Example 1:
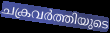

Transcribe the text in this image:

ചക്രവർത്തിയുടെ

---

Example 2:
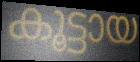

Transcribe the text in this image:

കൂട്ടായ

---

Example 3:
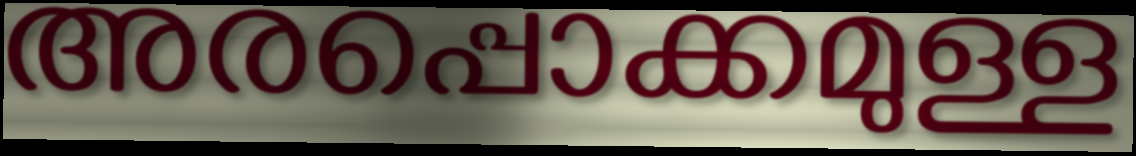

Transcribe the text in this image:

അരപ്പൊക്കമുള്ള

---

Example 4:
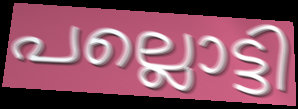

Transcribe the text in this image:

പല്ലൊട്ടി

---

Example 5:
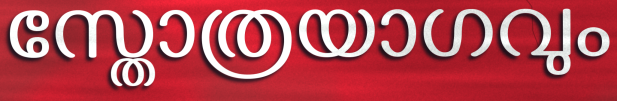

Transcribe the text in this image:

സ്തോത്രയാഗവും